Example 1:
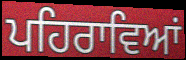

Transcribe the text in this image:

ਪਹਿਰਾਵਿਆਂ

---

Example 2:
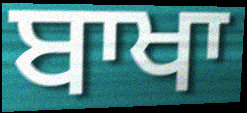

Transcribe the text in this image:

ਬਾਖਾ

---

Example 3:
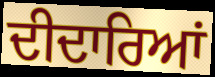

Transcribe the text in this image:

ਦੀਦਾਰਿਆਂ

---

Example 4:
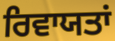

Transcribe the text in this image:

ਰਿਵਾਯਤਾਂ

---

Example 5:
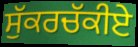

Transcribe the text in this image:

ਸੁੱਕਰਚੱਕੀਏ